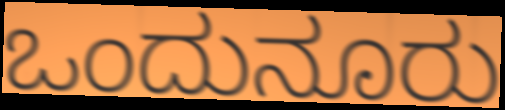
ಒಂದುನೂರು